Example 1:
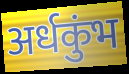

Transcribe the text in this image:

अर्धकुंभ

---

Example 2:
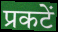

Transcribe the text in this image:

प्रकटें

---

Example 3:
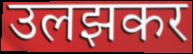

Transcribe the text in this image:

उलझकर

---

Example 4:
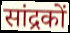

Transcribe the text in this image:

सांद्रकों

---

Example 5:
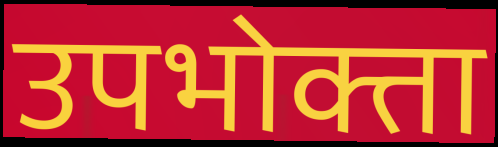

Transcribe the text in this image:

उपभोक्ता